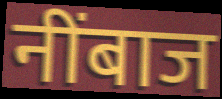
नींबाज